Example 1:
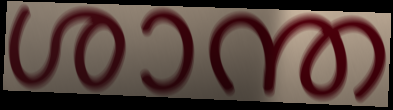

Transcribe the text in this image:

ശാന്ത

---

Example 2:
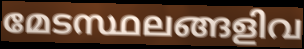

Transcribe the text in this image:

മേടസ്ഥലങ്ങളിവ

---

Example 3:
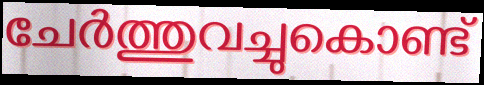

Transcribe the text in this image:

ചേർത്തുവച്ചുകൊണ്ട്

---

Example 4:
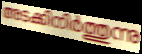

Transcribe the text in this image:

അടക്കിനിർത്തുന്നു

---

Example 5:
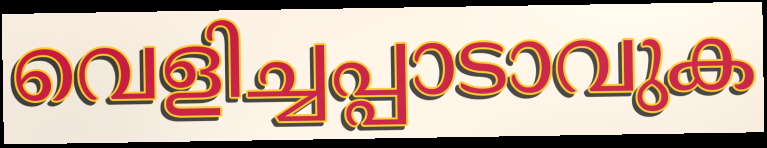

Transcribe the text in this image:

വെളിച്ചപ്പാടാവുക